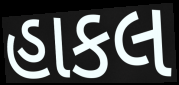
હાકલ